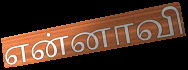
என்னாவி